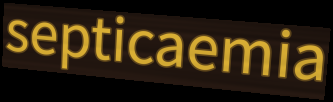
septicaemia